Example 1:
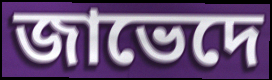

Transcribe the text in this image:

জাভেদে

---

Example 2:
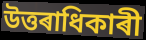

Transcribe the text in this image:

উত্তৰাধিকাৰী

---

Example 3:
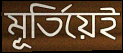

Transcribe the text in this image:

মূৰ্তিয়েই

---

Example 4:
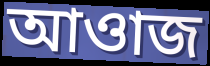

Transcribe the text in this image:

আওাজ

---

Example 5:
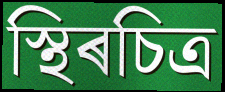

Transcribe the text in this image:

স্থিৰচিত্ৰ